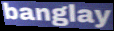
banglay